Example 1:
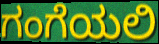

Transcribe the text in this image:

ಗಂಗೆಯಲಿ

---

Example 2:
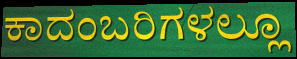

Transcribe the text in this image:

ಕಾದಂಬರಿಗಳಲ್ಲೂ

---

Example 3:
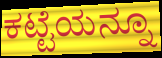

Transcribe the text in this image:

ಕಟ್ಟೆಯನ್ನೂ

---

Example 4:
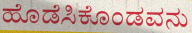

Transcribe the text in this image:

ಹೊಡೆಸಿಕೊಂಡವನು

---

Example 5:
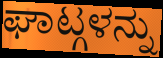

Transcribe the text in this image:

ಘಾಟ್ಗಳನ್ನು